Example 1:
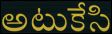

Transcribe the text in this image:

అటుకేసి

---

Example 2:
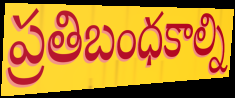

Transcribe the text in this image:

ప్రతిబంధకాల్ని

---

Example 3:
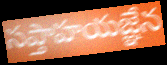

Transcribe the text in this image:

సప్తాహయజ్ఞేన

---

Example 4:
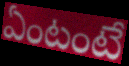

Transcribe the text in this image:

ఏంటంటే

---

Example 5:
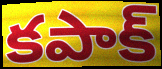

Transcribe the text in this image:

కపాక్